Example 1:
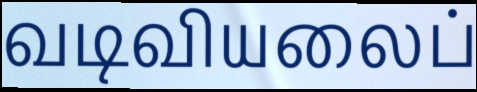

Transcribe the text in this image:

வடிவியலைப்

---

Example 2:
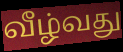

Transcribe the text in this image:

வீழ்வது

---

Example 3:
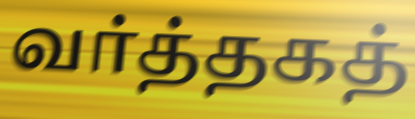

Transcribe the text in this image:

வர்த்தகத்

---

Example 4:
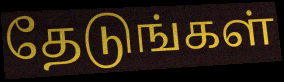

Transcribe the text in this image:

தேடுங்கள்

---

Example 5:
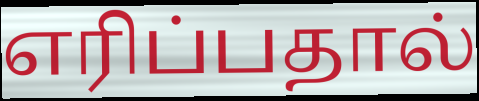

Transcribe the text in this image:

எரிப்பதால்